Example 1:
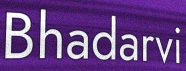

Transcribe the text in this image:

Bhadarvi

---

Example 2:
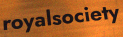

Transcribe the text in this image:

royalsociety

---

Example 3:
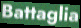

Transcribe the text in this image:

Battaglia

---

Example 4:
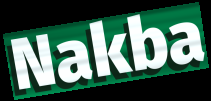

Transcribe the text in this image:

Nakba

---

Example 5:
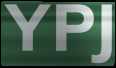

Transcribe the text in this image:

YPJ